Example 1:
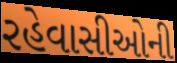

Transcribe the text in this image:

રહેવાસીઓની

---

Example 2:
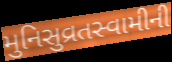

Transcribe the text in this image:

મુનિસુવ્રતસ્વામીની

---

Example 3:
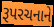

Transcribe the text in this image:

રૂપરચનાને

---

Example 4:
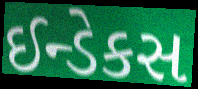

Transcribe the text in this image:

ઈન્ડેકસ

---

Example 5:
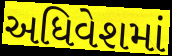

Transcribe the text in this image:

અધિવેશમાં